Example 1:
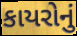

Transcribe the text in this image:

કાયરોનું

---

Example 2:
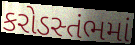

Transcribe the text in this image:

કરોડસ્તંભમાં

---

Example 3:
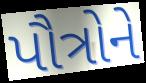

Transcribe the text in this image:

પૌત્રોને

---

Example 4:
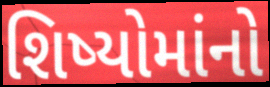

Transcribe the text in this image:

શિષ્યોમાંનો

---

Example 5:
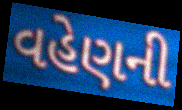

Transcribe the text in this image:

વહેણની